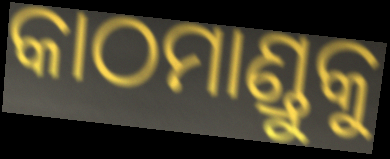
କାଠମାଣ୍ଡୁକୁ